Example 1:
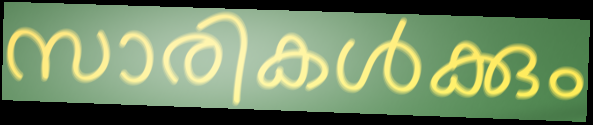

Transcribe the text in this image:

സാരികൾക്കും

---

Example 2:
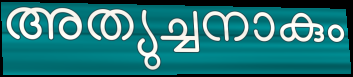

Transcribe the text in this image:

അത്യുച്ചനാകും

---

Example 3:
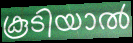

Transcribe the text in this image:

കൂടിയാൽ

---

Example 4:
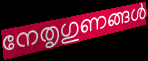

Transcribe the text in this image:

നേതൃഗുണങ്ങൾ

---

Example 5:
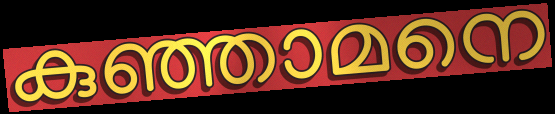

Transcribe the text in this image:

കുഞ്ഞാമനെ